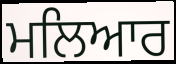
ਮਲਿਆਰ